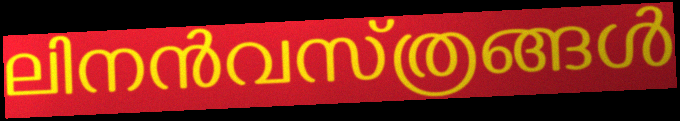
ലിനൻവസ്‌ത്രങ്ങൾ